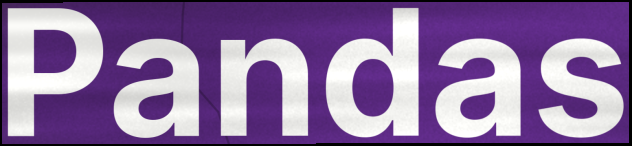
Pandas